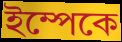
ইম্পেকে